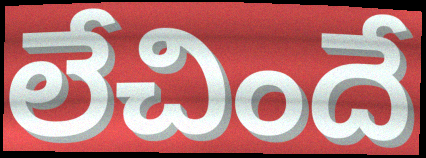
లేచిందే